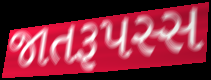
જાતરૂપસ્સ